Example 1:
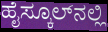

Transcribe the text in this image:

ಹೈಸ್ಕೂಲ್‌ನಲ್ಲಿ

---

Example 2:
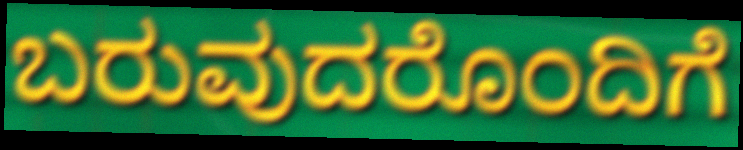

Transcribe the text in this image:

ಬರುವುದರೊಂದಿಗೆ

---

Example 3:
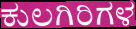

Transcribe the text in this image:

ಕುಲಗಿರಿಗಳ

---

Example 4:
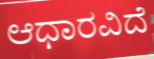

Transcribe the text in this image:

ಆಧಾರವಿದೆ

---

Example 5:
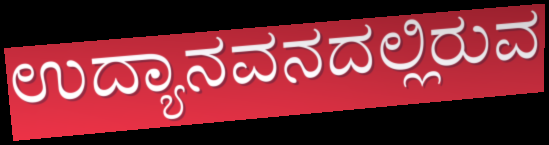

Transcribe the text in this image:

ಉದ್ಯಾನವನದಲ್ಲಿರುವ